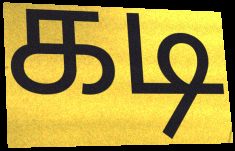
கடி